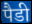
पैडी